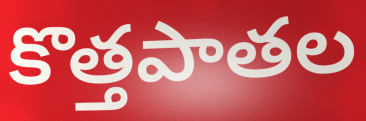
కొత్తపాతల